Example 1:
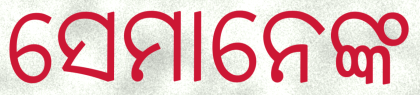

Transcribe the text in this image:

ସେମାନେଙ୍କ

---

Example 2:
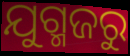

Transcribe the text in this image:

ଯୁଗ୍ମଜରୁ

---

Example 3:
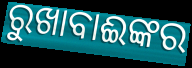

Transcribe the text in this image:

ରୁଖାବାଈଙ୍କର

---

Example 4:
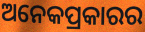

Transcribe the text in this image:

ଅନେକପ୍ରକାରର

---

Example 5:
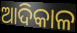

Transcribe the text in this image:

ଆଦିକାଳ